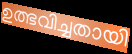
ഉത്ഭവിച്ചതായി